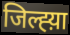
जिल्ह्य़ा